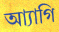
আ্যাগি